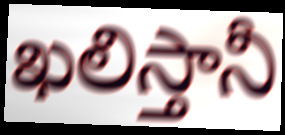
ఖలిస్తానీ